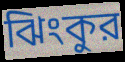
ঝিংকুর